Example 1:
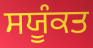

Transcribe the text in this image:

ਸਯੂੰਕਤ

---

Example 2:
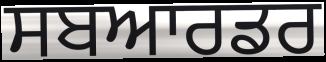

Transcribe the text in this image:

ਸਬਆਰਡਰ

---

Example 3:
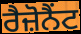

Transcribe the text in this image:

ਰੈਜ਼ੋਨੈਂਟ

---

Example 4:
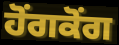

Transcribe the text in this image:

ਹੋਂਗਕੋਂਗ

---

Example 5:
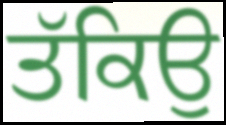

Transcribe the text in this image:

ਤੱਕਿਉ